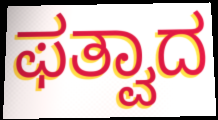
ಫತ್ವಾದ